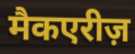
मैकएरीज़